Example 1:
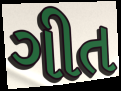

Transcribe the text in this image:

ગીત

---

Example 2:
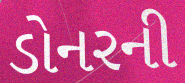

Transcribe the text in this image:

ડોનરની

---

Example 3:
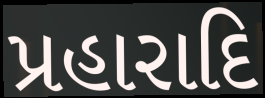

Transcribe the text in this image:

પ્રહારાદિ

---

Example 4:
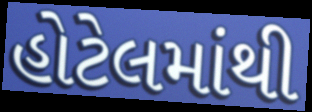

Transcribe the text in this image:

હોટેલમાંથી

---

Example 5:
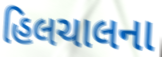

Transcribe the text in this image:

હિલચાલના